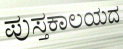
ಪುಸ್ತಕಾಲಯದ